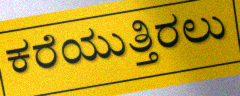
ಕರೆಯುತ್ತಿರಲು